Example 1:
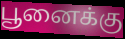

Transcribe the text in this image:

பூனைக்கு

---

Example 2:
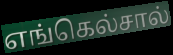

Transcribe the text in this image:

எங்கெல்சால்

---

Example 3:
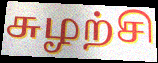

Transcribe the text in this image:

சுழற்சி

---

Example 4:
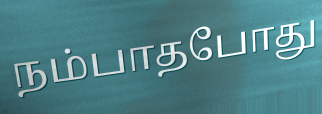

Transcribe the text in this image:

நம்பாதபோது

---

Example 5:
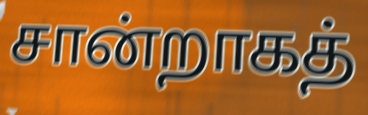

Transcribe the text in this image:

சான்றாகத்